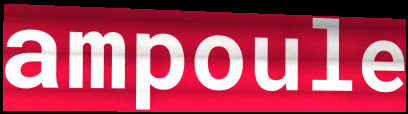
ampoule